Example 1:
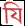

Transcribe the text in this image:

যি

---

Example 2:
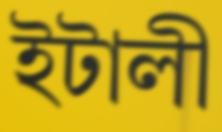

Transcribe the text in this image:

ইটালী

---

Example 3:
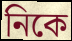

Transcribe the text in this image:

নিকে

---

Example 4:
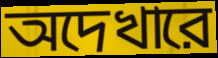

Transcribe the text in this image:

অদেখারে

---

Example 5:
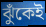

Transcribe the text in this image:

ঝুঁকেই